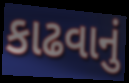
કાઢવાનું